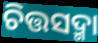
ଚିତ୍ତସଦ୍ମା